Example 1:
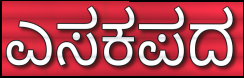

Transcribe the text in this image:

ಎಸಕಪದ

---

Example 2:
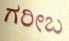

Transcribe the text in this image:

ಗರೀಬ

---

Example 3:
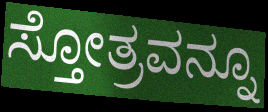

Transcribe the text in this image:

ಸ್ತೋತ್ರವನ್ನೂ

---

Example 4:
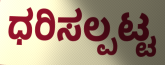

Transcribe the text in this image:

ಧರಿಸಲ್ಪಟ್ಟ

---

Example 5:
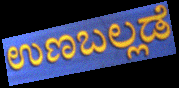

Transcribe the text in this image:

ಉಣಬಲ್ಲಡೆ